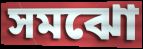
সমঝো